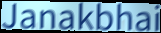
Janakbhai